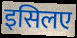
इसिलए